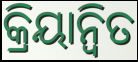
କ୍ରିୟାନ୍ୱିତ